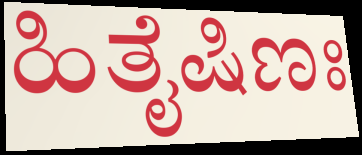
ಹಿತೈಷಿಣಃ